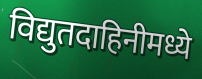
विद्युतदाहिनीमध्ये